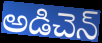
అడిచెన్